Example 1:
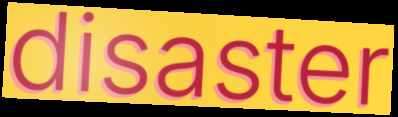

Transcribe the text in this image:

disaster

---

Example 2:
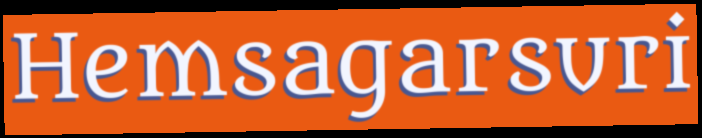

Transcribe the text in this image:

Hemsagarsuri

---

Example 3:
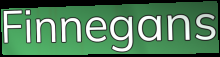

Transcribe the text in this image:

Finnegans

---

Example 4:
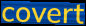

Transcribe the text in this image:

covert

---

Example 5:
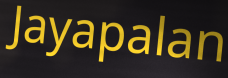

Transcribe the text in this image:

Jayapalan